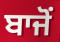
ਬਾਜੋਂ